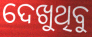
ଦେଖୁଥିବୁ